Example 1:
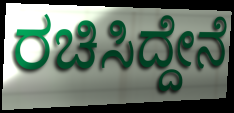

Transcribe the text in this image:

ರಚಿಸಿದ್ದೇನೆ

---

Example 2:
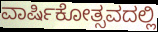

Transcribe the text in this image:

ವಾರ್ಷಿಕೋತ್ಸವದಲ್ಲಿ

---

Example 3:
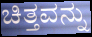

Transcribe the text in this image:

ಚಿತ್ತವನ್ನು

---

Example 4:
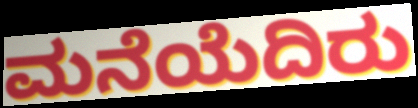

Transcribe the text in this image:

ಮನೆಯೆದಿರು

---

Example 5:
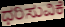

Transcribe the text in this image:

ಧರಿಸುವಿಕೆ